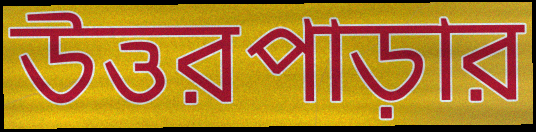
উত্তরপাড়ার